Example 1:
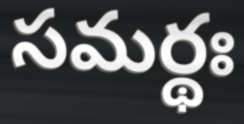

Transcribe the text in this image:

సమర్థః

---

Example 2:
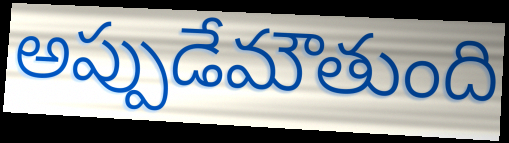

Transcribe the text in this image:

అప్పుడేమౌతుంది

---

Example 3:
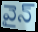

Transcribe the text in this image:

వైన్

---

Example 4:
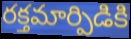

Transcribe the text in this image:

రక్తమార్పిడికి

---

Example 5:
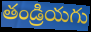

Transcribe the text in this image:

తండ్రియగు